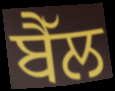
ਬੈੱਲ